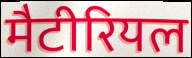
मैटीरियल